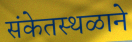
संकेतस्थळाने